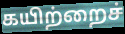
கயிற்றைச்